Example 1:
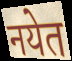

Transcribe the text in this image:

नयेत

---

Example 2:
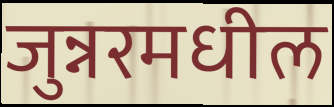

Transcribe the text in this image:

जुन्नरमधील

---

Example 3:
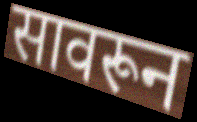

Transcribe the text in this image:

सावरून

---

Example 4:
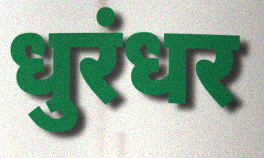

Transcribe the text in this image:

धुरंधर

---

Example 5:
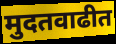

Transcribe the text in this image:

मुदतवाढीत